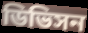
ডিভিসন